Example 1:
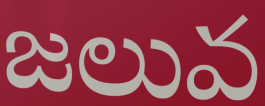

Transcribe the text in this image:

జలువ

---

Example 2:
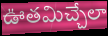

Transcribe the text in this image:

ఊతమిచ్చేలా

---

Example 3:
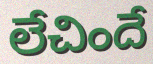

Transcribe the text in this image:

లేచిందే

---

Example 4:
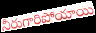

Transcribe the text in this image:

నీరుగారిపోయాయి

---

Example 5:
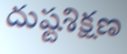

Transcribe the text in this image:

దుష్టశిక్షణ